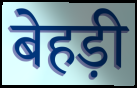
बेहड़ी